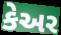
કેઅર